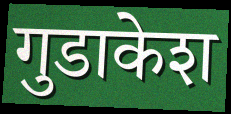
गुडाकेश